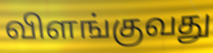
விளங்குவது